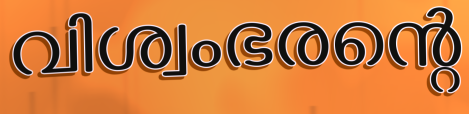
വിശ്വംഭരന്റെ